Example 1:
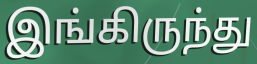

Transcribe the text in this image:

இங்கிருந்து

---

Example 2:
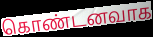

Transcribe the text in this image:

கொண்டனவாக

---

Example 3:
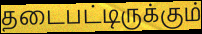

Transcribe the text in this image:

தடைபட்டிருக்கும்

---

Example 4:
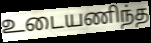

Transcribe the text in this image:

உடையணிந்த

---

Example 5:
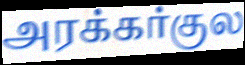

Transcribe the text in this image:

அரக்கர்குல